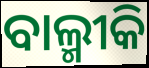
ବାଲ୍ମୀକି